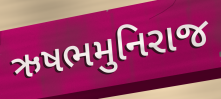
ઋષભમુનિરાજ